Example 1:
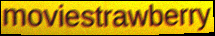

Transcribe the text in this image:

moviestrawberry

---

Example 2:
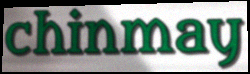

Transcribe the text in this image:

chinmay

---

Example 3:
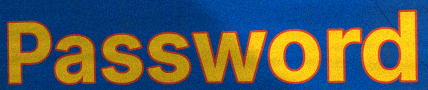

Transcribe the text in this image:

Password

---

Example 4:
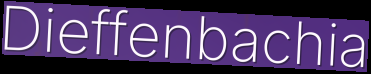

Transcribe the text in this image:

Dieffenbachia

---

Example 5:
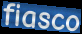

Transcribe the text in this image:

fiasco